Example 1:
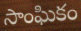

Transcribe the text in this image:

సాంఘికం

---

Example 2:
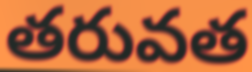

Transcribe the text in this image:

తరువత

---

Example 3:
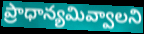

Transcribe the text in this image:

ప్రాధాన్యమివ్వాలని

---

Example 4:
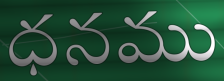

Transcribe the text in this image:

ధనము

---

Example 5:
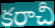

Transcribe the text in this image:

కరాచీ